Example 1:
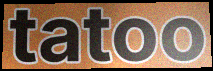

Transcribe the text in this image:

tatoo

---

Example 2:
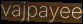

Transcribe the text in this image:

vajpayee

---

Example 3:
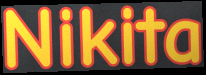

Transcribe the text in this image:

Nikita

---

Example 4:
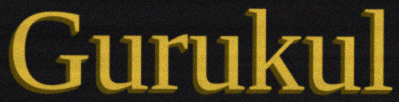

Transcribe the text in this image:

Gurukul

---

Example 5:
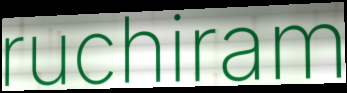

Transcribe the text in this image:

ruchiram